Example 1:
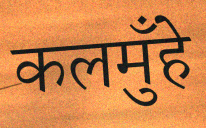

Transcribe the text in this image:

कलमुँहे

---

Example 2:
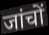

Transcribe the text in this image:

जांचों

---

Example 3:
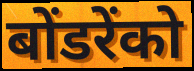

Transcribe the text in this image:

बोंडरेंको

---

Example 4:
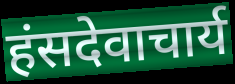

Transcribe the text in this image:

हंसदेवाचार्य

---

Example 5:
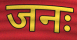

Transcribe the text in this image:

जनः